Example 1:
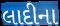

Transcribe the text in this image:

લાદીના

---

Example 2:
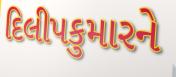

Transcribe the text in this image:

દિલીપકુમારને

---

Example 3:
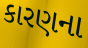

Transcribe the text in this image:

કારણના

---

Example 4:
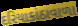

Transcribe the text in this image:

દરિયાકાંઠાવાળા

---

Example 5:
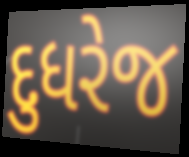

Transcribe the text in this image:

દુધરેજ